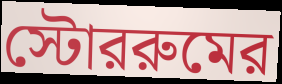
স্টোররুমের